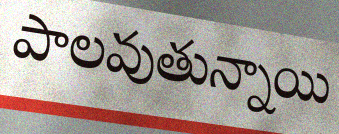
పాలవుతున్నాయి